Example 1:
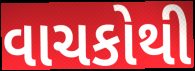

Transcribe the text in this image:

વાચકોથી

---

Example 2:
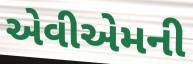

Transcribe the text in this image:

એવીએમની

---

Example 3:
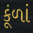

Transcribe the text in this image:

કૂંળાં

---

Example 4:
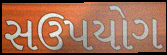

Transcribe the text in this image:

સઉપયોગ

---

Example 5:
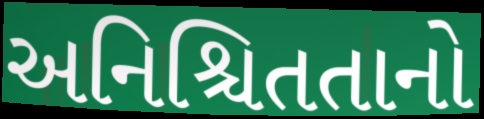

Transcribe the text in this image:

અનિશ્ચિતતાનો